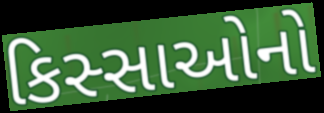
કિસ્સાઓનો